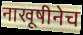
नाखूषीनेच